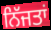
ਨਿੱਜਤਾਂ